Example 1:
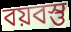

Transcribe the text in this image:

বয়বস্তু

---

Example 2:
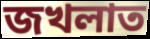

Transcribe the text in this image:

জখলাত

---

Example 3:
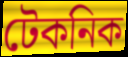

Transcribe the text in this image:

টেকনিক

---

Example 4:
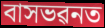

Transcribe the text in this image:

বাসভৱনত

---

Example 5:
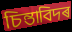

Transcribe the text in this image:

চিন্তাবিদৰ